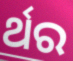
ର୍ଥର